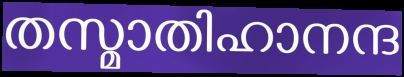
തസ്മാതിഹാനന്ദ